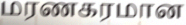
மரணகரமான